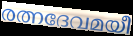
രത്നദേവമയീ